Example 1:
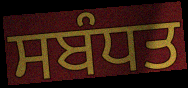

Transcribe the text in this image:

ਸਬੰਧਤ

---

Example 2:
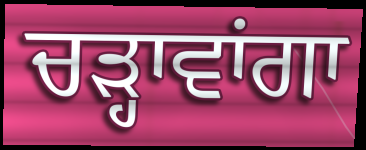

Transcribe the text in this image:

ਚੜ੍ਹਾਵਾਂਗਾ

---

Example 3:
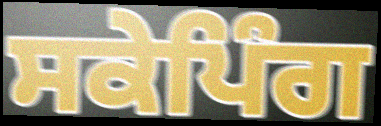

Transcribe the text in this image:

ਸਕੇਪਿੰਗ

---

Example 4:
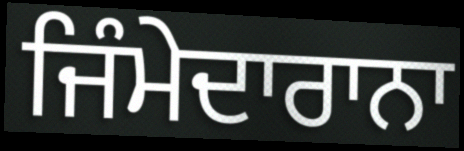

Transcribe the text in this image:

ਜਿੰਮੇਦਾਰਾਨਾ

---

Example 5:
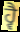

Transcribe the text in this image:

ਹ੍ਵੈ